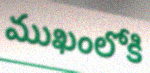
ముఖంలోకి